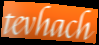
tevhach